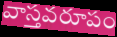
వాస్తవరూపం